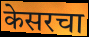
केसरचा